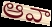
ఆవా